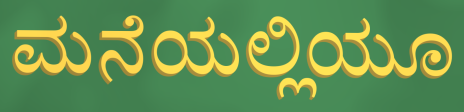
ಮನೆಯಲ್ಲಿಯೂ